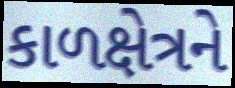
કાળક્ષેત્રને